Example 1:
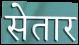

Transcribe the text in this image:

सेतार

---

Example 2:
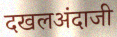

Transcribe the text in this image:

दखलअंदाजी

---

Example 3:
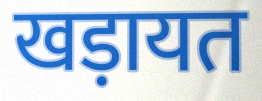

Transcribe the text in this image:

खड़ायत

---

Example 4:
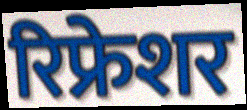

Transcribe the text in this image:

रिफ्रेशर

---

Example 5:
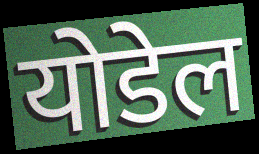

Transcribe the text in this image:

योडेल